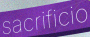
sacrificio